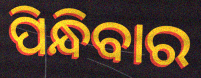
ପିନ୍ଧିବାର